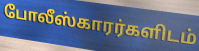
போலீஸ்காரர்களிடம்